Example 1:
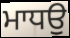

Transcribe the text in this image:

ਮਾਧਉ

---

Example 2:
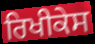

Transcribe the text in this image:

ਰਿਖੀਕੇਸ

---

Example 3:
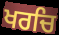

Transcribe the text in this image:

ਖਰਚਿ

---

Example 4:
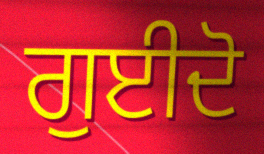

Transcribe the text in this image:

ਗੁਈਦੋ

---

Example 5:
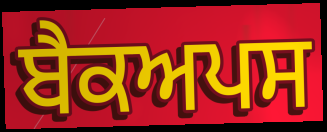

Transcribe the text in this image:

ਬੈਕਅਪਸ